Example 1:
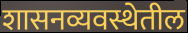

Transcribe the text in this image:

शासनव्यवस्थेतील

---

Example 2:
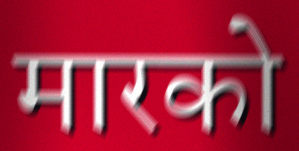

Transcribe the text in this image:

मारको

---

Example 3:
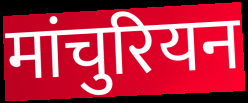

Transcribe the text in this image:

मांचुरियन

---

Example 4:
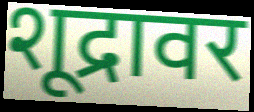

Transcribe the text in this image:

शूद्रावर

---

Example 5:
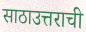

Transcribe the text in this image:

साठाउत्तराची